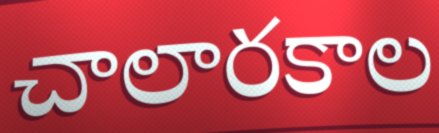
చాలారకాల